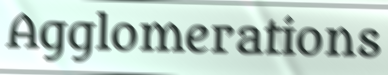
Agglomerations